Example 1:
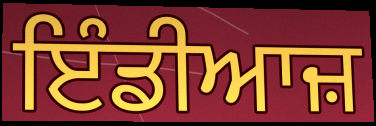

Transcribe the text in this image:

ਇੰਡੀਆਜ਼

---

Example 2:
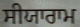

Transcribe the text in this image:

ਸੀਯਾਰਾਮ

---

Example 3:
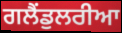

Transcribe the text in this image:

ਗਲੈਂਡੁਲਰੀਆ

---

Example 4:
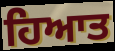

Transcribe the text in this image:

ਹਿਆਤ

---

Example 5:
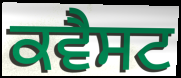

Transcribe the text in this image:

ਕਵੈਸਟ